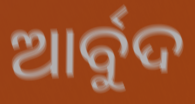
ଆର୍ବୁଦ